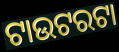
ଟାଉଟରଟା